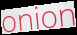
onion